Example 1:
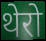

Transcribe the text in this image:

थेरो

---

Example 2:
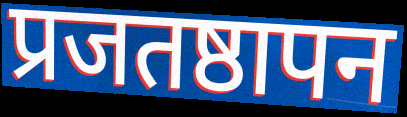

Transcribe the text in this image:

प्रजतष्ठापन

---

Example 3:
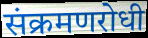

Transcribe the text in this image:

संक्रमणरोधी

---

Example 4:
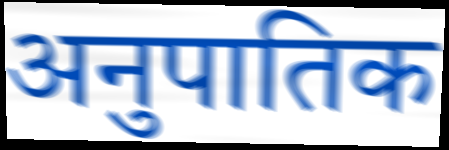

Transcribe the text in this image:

अनुपातिक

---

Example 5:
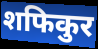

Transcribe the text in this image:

शफिकुर